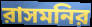
রাসমনির